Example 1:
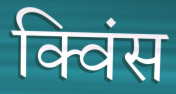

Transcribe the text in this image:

क्विंस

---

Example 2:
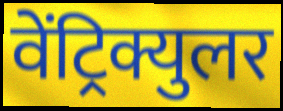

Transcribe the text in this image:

वेंट्रिक्युलर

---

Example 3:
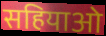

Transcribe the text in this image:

सहियाओ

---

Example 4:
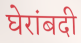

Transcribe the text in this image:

घेरांबदी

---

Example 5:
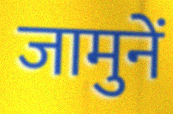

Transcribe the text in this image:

जामुनें